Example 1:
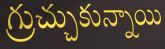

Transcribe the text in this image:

గ్రుచ్చుకున్నాయి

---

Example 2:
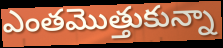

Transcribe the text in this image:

ఎంతమొత్తుకున్నా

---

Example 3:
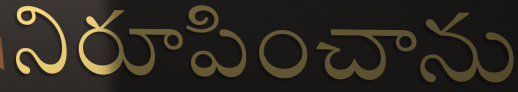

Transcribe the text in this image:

నిరూపించాను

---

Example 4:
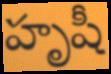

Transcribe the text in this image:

హృషీ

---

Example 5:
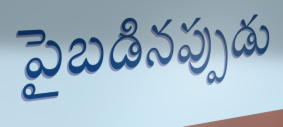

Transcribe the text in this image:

పైబడినప్పుడు